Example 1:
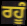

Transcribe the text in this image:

ਰਹੂੰ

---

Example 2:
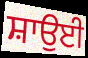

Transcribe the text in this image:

ਸ਼ਾਉਈ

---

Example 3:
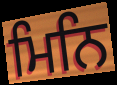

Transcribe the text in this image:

ਮਿਨਿ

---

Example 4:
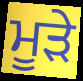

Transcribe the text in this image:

ਮੂੜੇ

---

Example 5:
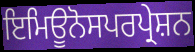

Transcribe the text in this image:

ਇਮਿਊਨੋਸਪਰਪ੍ਰੇਸ਼ਨ